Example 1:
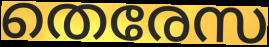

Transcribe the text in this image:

തെരേസ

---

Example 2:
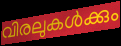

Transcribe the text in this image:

വിരലുകൾക്കും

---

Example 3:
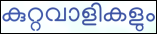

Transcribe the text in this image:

കുറ്റവാളികളും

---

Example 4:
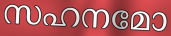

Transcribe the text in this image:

സഹനമോ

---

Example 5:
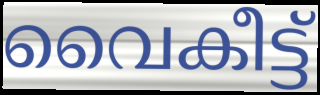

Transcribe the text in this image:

വൈകീട്ട്